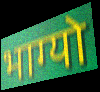
भाग्यो